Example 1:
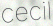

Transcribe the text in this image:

cecil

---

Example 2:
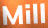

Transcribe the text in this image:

Mill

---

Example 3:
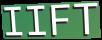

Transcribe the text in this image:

IIFT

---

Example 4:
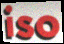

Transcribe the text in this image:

iso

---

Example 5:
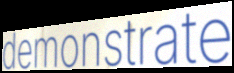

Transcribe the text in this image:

demonstrate